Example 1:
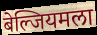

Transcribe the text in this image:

बेल्जियमला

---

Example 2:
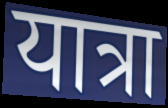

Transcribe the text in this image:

यात्रा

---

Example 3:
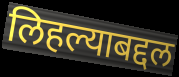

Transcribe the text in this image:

लिहल्याबद्दल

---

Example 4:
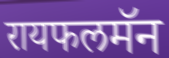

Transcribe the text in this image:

रायफलमॅन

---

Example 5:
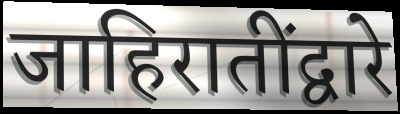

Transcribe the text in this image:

जाहिरातींद्वारे